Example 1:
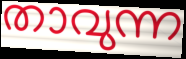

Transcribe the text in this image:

താവുന്ന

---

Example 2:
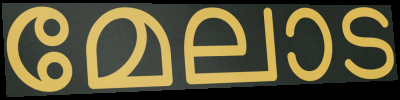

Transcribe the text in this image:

മേലാട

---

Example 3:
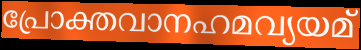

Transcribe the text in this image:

പ്രോക്തവാനഹമവ്യയമ്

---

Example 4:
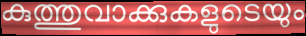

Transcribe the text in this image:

കുത്തുവാക്കുകളുടെയും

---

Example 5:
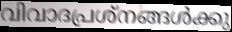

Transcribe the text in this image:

വിവാദപ്രശ്നങ്ങൾക്കു